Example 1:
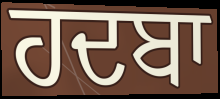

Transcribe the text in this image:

ਹਦਬਾ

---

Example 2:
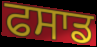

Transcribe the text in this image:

ਫਸਾਡ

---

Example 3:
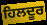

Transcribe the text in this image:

ਹਿਲਦੂਰ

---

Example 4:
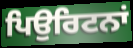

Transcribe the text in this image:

ਪਿਉਰਿਟਨਾਂ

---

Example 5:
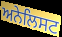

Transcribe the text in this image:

ਅਨੇਲਿਸਟ